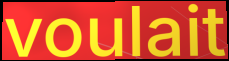
voulait